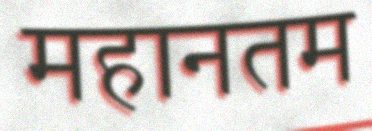
महानतम